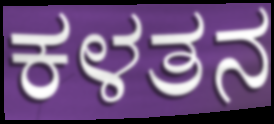
ಕಳತನ